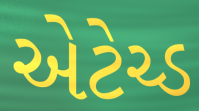
એટેચ્ડ